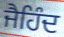
ਜੈਹਿੰਦ